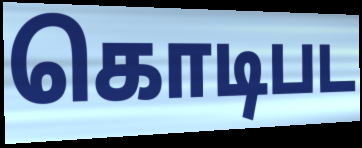
கொடிபட